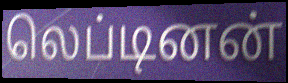
லெப்டினன்